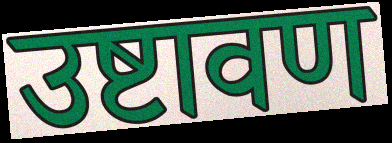
उष्टावण